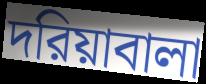
দরিয়াবালা